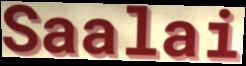
Saalai